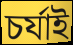
চর্যাই